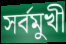
সর্বমুখী